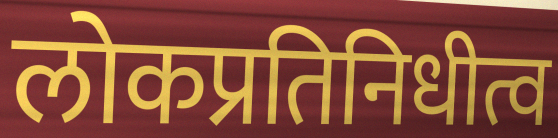
लोकप्रतिनिधीत्व